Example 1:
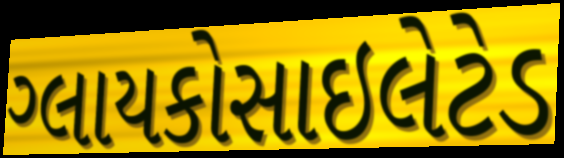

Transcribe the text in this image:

ગ્લાયકોસાઇલેટેડ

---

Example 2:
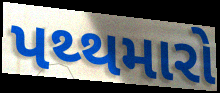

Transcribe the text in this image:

પથ્થમારો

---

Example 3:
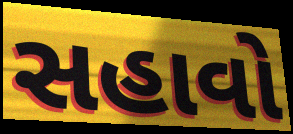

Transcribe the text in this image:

સહાવો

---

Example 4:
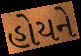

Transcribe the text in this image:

હોયને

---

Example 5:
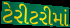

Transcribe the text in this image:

ટેરીટરીમાં